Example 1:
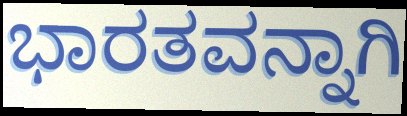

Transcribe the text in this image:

ಭಾರತವನ್ನಾಗಿ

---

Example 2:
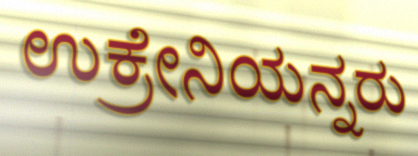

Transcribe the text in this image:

ಉಕ್ರೇನಿಯನ್ನರು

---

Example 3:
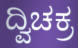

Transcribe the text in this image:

ದ್ವಿಚಕ್ರ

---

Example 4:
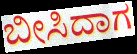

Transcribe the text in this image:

ಬೀಸಿದಾಗ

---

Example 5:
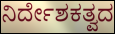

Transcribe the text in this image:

ನಿರ್ದೇಶಕತ್ವದ